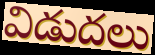
విడుదలు